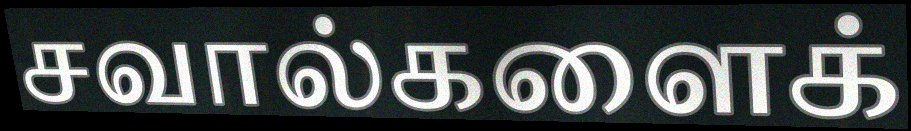
சவால்களைக்